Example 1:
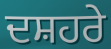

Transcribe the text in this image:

ਦਸ਼ਹਰੇ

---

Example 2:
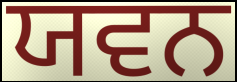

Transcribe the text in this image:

ਯਵਨ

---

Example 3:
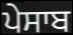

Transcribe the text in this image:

ਪੇਸਾਬ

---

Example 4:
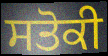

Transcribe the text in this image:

ਸਤੋਕੀ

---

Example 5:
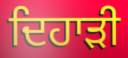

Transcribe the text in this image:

ਦਿਹਾੜੀ